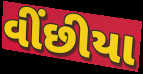
વીંછીયા